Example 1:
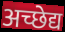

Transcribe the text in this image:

अच्छेद्य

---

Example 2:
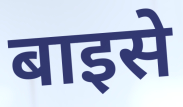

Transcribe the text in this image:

बाइसे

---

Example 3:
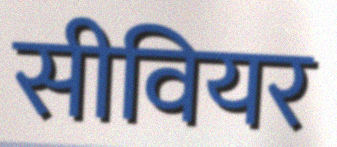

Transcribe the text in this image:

सीवियर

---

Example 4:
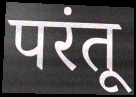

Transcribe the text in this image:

परंतू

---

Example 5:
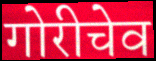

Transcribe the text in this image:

गोरीचेव